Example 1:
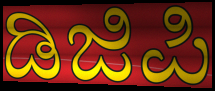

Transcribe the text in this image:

ಡಿಜಿಪಿ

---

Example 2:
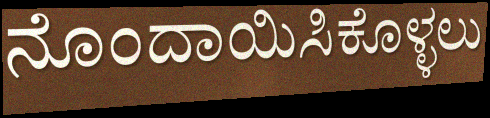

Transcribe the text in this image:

ನೊಂದಾಯಿಸಿಕೊಳ್ಳಲು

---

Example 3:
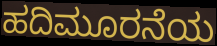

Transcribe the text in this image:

ಹದಿಮೂರನೆಯ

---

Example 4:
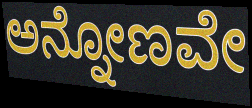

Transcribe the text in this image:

ಅನ್ನೋಣವೇ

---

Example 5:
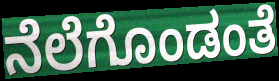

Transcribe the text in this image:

ನೆಲೆಗೊಂಡಂತೆ